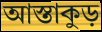
আস্তাকুড়